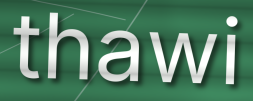
thawi